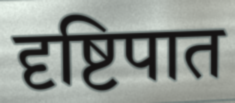
दृष्टिपात